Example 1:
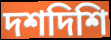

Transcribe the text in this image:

দশদিশি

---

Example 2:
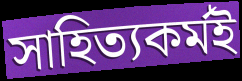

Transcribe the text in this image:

সাহিত্যকর্মই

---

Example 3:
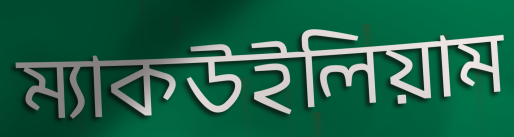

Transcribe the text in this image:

ম্যাকউইলিয়াম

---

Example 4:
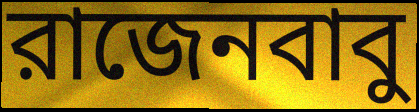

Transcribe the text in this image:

রাজেনবাবু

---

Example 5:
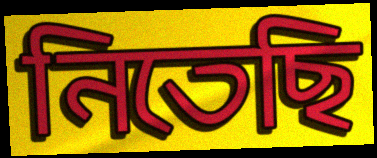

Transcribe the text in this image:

নিতেছি